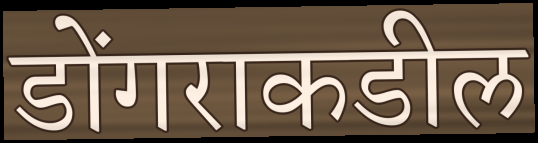
डोंगराकडील